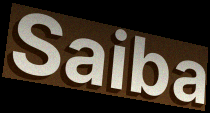
Saiba